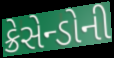
ક્રેસેન્ડોની